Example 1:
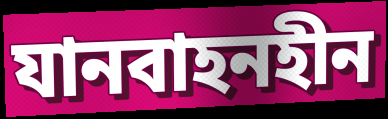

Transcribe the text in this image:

যানবাহনহীন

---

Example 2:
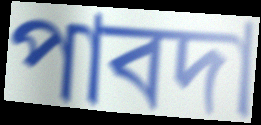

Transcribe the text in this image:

পাবদা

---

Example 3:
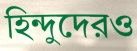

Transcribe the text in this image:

হিন্দুদেরও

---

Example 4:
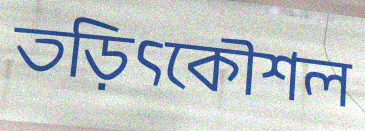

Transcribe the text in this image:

তড়িৎকৌশল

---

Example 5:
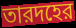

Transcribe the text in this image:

তারদহের